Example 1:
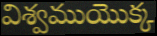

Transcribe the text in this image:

విశ్వముయొక్క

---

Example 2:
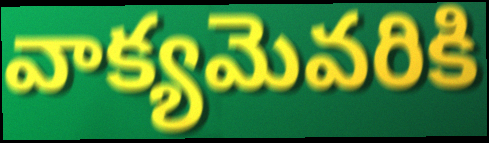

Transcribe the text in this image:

వాక్యమెవరికి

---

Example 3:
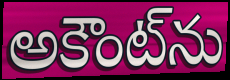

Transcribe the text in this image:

అకౌంట్‌ను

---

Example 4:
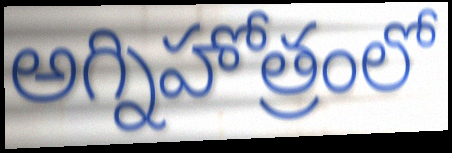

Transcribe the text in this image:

అగ్నిహోత్రంలో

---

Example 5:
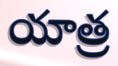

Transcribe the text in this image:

యాత్ర